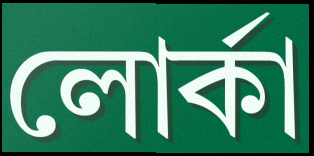
লোর্কা